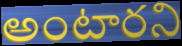
అంటారని